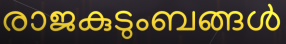
രാജകുടുംബങ്ങൾ